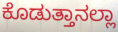
ಕೊಡುತ್ತಾನಲ್ಲಾ